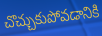
చొచ్చుకుపోవడానికి